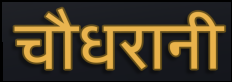
चौधरानी